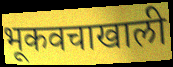
भूकवचाखाली